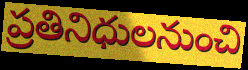
ప్రతినిధులనుంచి